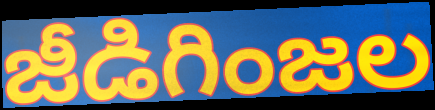
జీడిగింజల